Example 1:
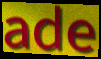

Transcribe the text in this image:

ade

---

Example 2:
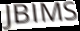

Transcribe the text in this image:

JBIMS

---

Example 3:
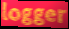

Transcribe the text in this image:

logger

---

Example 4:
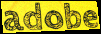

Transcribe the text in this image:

adobe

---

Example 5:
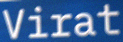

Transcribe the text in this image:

Virat